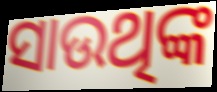
ସାଉଥିଙ୍କ